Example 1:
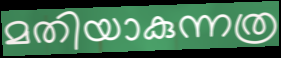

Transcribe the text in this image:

മതിയാകുന്നത്ര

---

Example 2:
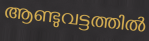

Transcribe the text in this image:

ആണ്ടുവട്ടത്തിൽ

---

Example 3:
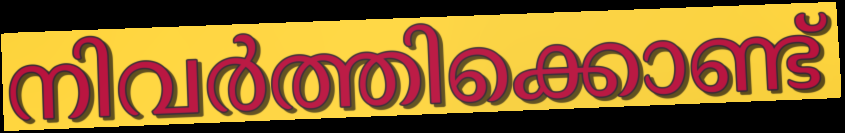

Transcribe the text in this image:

നിവർത്തിക്കൊണ്ട്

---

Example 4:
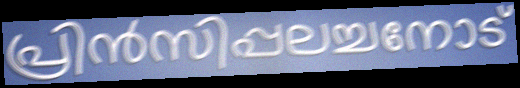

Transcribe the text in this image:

പ്രിൻസിപ്പലച്ചനോട്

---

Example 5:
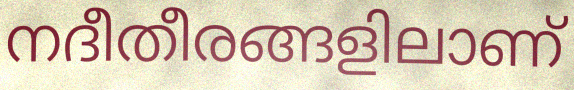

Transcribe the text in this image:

നദീതീരങ്ങളിലാണ്